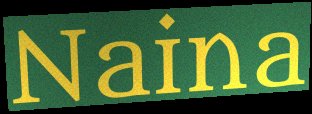
Naina